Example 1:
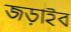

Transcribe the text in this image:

জড়াইব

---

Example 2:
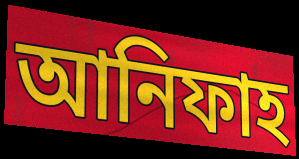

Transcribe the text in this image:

আনিফাহ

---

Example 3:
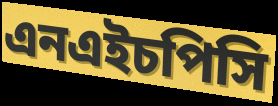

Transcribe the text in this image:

এনএইচপিসি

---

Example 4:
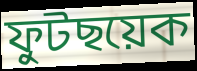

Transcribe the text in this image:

ফুটছয়েক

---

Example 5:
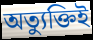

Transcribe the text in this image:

অত্যুক্তিই